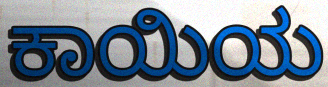
ಕಾಯಿಯ